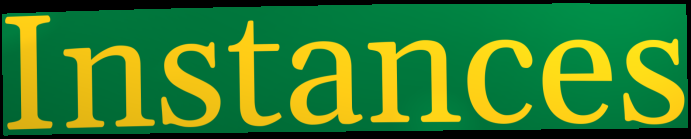
Instances